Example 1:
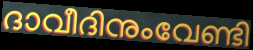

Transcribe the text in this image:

ദാവീദിനുംവേണ്ടി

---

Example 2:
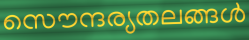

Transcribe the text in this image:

സൌന്ദര്യതലങ്ങൾ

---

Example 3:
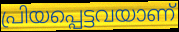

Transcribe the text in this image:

പ്രിയപ്പെട്ടവയാണ്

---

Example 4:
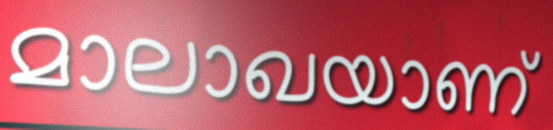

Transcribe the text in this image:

മാലാഖയാണ്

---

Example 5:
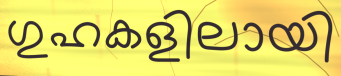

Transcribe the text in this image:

ഗുഹകളിലായി